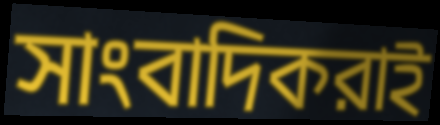
সাংবাদিকরাই